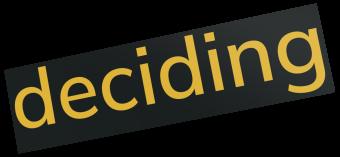
deciding